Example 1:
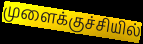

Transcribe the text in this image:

முளைக்குச்சியில்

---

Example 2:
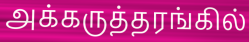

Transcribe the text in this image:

அக்கருத்தரங்கில்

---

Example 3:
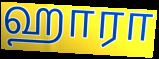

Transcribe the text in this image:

ஹாரா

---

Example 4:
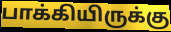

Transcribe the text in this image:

பாக்கியிருக்கு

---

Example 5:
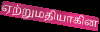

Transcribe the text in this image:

ஏற்றுமதியாகின